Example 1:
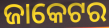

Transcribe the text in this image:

ଜାକେଟର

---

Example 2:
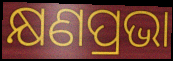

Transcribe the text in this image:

କ୍ଷଣପ୍ରଭା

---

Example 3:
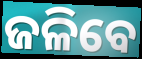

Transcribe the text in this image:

ଜଳିବେ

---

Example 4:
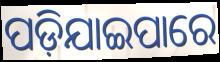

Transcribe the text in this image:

ପଡ଼ିଯାଇପାରେ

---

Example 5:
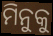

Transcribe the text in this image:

ମିନୁକୁ